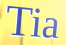
Tia